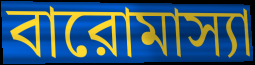
বারোমাস্যা